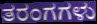
ತರಂಗಗಳು